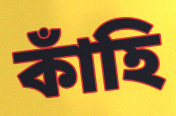
কাঁহি